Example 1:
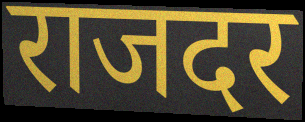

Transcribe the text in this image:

राजदर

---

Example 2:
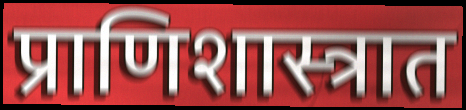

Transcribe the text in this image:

प्राणिशास्त्रात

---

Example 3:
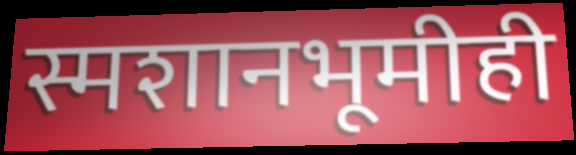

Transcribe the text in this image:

स्मशानभूमीही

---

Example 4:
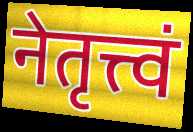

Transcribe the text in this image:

नेतृत्त्वं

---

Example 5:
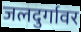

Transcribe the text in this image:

जलदुर्गावर